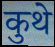
कुथे